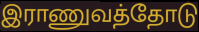
இராணுவத்தோடு